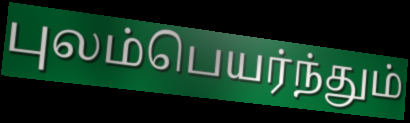
புலம்பெயர்ந்தும்